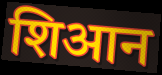
शिआन